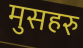
मुसहरु